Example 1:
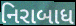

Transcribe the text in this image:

નિરાબાધ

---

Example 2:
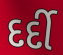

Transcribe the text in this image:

દર્દી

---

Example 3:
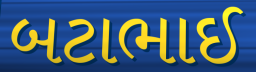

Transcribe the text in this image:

બટાભાઈ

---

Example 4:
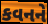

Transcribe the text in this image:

કવનને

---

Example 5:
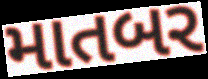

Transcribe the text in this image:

માતબર